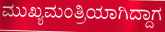
ಮುಖ್ಯಮಂತ್ರಿಯಾಗಿದ್ದಾಗ